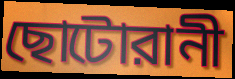
ছোটোরানী